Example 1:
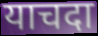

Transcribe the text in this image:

याचदा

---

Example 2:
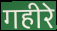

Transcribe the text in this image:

गहीरे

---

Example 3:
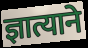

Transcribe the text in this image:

ज्ञात्याने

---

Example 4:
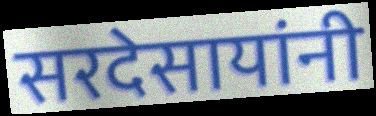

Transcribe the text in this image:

सरदेसायांनी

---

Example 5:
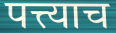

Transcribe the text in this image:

पत्त्याच